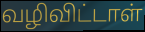
வழிவிட்டாள்